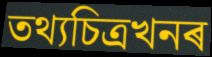
তথ্যচিত্ৰখনৰ